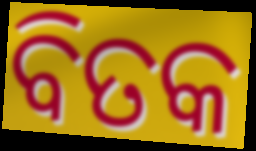
ବିତକ